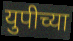
युपीच्या